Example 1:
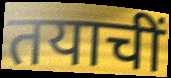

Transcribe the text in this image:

तयाचीं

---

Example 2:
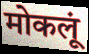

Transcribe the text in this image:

मोकलूं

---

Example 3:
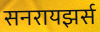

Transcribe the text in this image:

सनरायझर्स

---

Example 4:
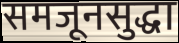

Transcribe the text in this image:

समजूनसुद्धा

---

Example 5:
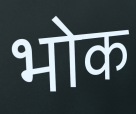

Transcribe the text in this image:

भोक